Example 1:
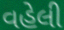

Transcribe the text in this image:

વહેલી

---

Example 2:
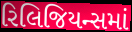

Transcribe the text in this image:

રિલિજિયન્સમાં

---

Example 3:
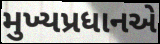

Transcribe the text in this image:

મુખ્યપ્રધાનએ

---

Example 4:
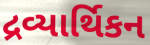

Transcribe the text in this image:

દ્રવ્યાર્થિકન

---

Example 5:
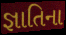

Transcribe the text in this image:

જ્ઞાતિના